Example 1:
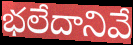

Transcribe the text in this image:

భలేదానివే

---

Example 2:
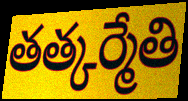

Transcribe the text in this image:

తత్కర్మేతి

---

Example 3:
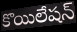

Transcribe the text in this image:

కొయిలేషన్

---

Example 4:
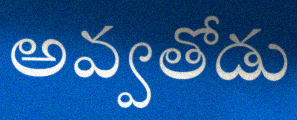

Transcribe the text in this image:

అవ్వతోడు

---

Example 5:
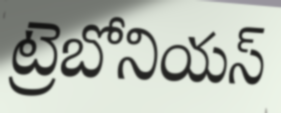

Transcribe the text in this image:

ట్రెబోనియస్